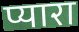
प्‍यारा